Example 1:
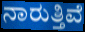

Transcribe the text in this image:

ನಾರುತ್ತಿವೆ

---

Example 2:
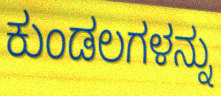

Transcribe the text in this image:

ಕುಂಡಲಗಳನ್ನು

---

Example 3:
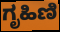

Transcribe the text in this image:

ಗೃಹಿಣಿ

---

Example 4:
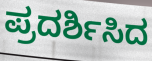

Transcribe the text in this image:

ಪ್ರದರ್ಶಿಸಿದ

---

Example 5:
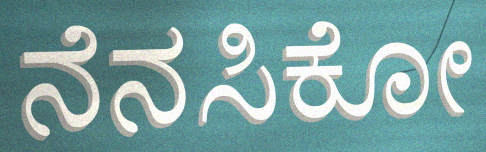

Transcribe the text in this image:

ನೆನಸಿಕೋ